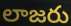
లాజరు